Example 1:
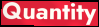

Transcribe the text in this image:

Quantity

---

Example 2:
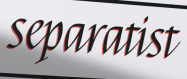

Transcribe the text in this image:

separatist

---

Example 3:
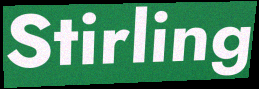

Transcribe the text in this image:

Stirling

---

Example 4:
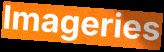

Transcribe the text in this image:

Imageries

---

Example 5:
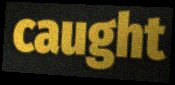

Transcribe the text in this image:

caught